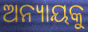
ଅନ୍ୟାୟକୁ